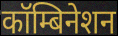
कॉम्बिनेशन